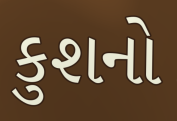
કુશનો